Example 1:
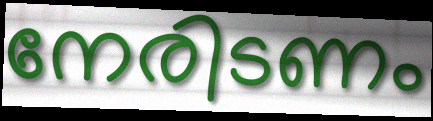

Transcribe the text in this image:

നേരിടണം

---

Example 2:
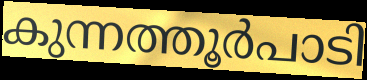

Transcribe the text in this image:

കുന്നത്തൂർപാടി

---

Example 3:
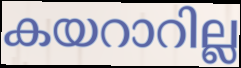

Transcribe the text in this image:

കയറാറില്ല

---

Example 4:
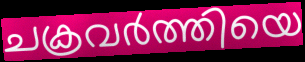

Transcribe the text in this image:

ചക്രവർത്തിയെ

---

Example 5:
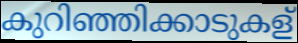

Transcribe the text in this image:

കുറിഞ്ഞിക്കാടുകള്